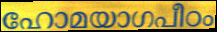
ഹോമയാഗപീഠം